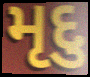
મૃદુ